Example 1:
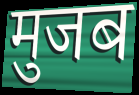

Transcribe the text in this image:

मुजब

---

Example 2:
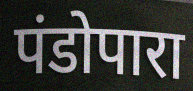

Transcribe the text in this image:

पंडोपारा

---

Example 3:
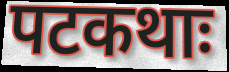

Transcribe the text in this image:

पटकथाः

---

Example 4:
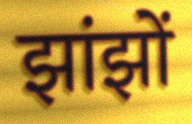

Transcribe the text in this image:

झांझों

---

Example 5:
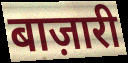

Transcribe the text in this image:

बाज़ारी